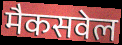
मैकसवेल